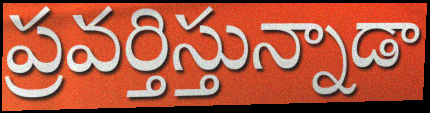
ప్రవర్తిస్తున్నాడా